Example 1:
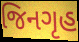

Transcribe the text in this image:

જિનગૃહ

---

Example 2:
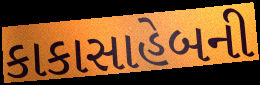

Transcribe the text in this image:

કાકાસાહેબની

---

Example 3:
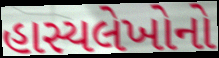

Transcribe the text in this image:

હાસ્યલેખોનો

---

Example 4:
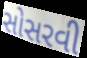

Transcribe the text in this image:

સોસરવી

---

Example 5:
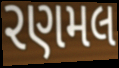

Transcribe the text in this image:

રણમલ